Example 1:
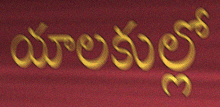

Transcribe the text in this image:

యాలకుల్లో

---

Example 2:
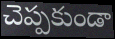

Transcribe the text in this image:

చెప్పకుండా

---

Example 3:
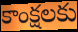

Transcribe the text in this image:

కాంక్షలకు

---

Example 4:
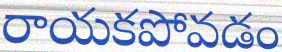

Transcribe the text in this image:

రాయకపోవడం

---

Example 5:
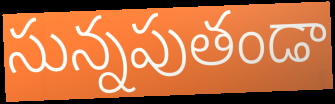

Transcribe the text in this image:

సున్నపుతండా